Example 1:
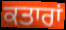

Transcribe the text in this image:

ਕਤਾਰਾਂ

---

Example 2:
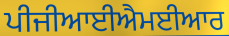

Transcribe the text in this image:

ਪੀਜੀਆਈਐਮਈਆਰ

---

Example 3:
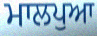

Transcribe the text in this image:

ਮਾਲਪੁਆ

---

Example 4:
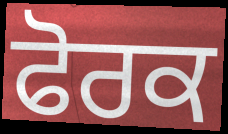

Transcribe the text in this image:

ਫੋਰਕ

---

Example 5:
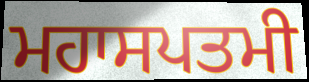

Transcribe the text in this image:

ਮਹਾਸਪਤਮੀ